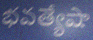
భవత్యేషా